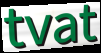
tvat